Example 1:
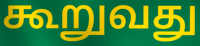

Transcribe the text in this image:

கூறுவது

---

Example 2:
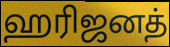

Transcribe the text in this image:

ஹரிஜனத்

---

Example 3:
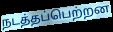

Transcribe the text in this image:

நடத்தப்பெற்றன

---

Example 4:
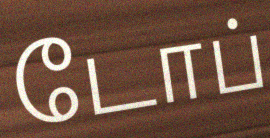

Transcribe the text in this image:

டோப்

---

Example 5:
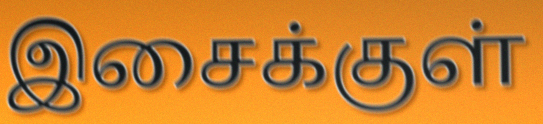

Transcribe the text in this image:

இசைக்குள்